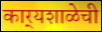
कार्यशाळेची